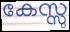
കേസ്സു